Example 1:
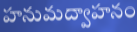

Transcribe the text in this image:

హనుమద్వాహనం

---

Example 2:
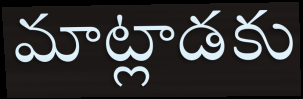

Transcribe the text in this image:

మాట్లాడకు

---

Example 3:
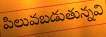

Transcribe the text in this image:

పిలువబడుతున్నవి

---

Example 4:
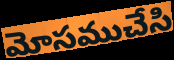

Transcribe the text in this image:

మోసముచేసి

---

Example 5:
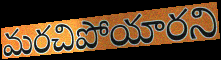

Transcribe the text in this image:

మరచిపోయారని